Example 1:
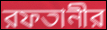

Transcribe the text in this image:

রফতানীর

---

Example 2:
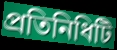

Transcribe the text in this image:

প্রতিনিধিটি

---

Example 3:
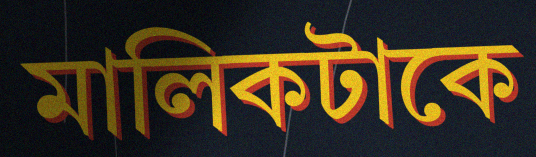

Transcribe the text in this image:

মালিকটাকে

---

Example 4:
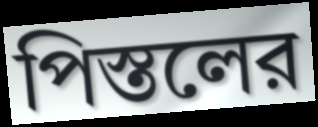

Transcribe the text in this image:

পিস্তলের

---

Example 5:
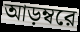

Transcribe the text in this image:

আড়ম্বরে